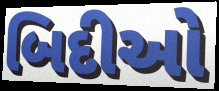
બિદીઓ